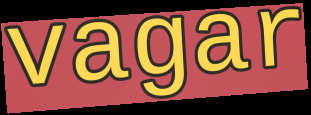
vagar